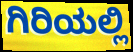
ಗಿರಿಯಲ್ಲಿ